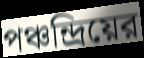
পঞ্চন্দ্রিয়ের